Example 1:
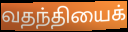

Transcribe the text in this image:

வதந்தியைக்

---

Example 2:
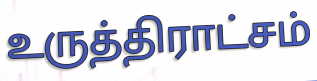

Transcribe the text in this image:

உருத்திராட்சம்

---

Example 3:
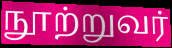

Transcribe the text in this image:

நூற்றுவர்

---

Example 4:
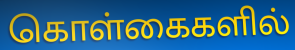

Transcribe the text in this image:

கொள்கைகளில்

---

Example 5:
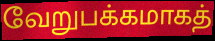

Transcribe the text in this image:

வேறுபக்கமாகத்